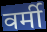
वर्मी